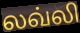
லவ்லி